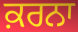
ਕ਼ਰਨਾ